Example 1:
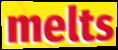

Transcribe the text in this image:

melts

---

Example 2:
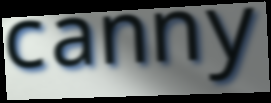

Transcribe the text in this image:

canny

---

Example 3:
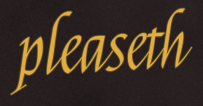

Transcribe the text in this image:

pleaseth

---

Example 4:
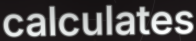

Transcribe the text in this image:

calculates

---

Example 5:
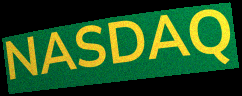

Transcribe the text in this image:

NASDAQ